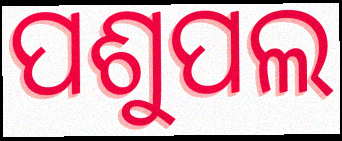
ପଶୁପଲ